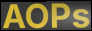
AOPs